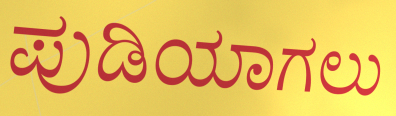
ಪುಡಿಯಾಗಲು